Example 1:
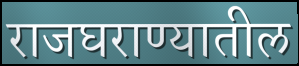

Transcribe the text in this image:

राजघराण्यातील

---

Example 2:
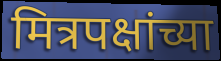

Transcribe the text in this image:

मित्रपक्षांच्या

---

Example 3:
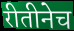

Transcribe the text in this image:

रीतीनेच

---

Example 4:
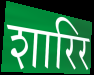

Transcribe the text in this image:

शारिर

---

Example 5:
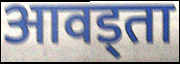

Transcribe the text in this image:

आवड्ता